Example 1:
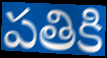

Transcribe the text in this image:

పతికి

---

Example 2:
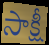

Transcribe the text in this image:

సాక్షీ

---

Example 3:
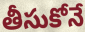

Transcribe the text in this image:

తీసుకోనే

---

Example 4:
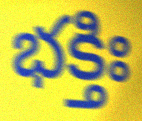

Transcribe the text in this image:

భక్తిః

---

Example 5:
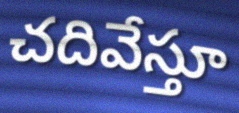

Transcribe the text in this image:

చదివేస్తూ